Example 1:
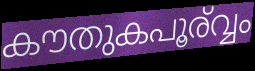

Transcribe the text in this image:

കൗതുകപൂര്വ്വം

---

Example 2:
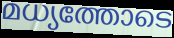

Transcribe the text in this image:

മധ്യത്തോടെ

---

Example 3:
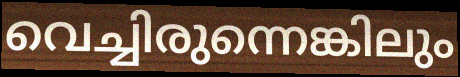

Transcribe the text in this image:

വെച്ചിരുന്നെങ്കിലും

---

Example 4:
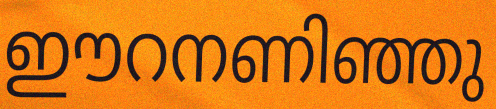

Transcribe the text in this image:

ഈറനണിഞ്ഞു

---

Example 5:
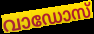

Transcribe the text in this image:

വാഡോസ്